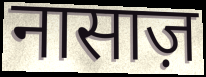
नासाज़